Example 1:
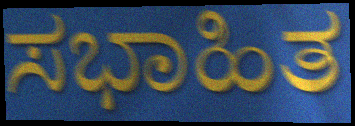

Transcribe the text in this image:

ಸಭಾಹಿತ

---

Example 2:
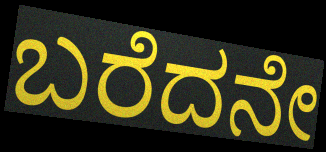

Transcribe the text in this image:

ಬರೆದನೇ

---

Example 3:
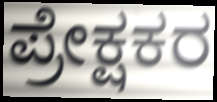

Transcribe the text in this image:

ಪ್ರೇಕ್ಷಕರ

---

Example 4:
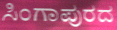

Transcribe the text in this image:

ಸಿಂಗಾಪುರದ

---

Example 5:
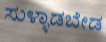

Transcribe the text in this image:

ಸುಳ್ಳಾಡಬೇಡ